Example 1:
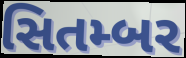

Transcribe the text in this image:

સિતમ્બર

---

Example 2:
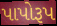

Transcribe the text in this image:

પાપોરૂપ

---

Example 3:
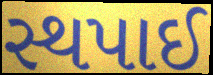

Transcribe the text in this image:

સ્થપાઈ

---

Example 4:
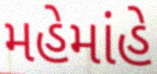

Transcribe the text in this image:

મહેમાંહે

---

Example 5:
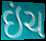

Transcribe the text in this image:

ઇંચ